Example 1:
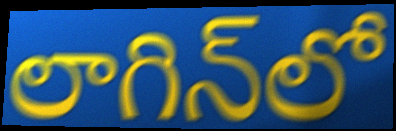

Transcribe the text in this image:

లాగిన్‌లో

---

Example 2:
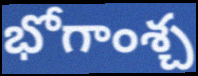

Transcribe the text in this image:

భోగాంశ్చ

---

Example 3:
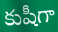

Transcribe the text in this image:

కుషీగా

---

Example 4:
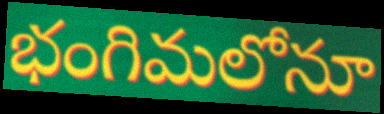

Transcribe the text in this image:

భంగిమలోనూ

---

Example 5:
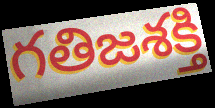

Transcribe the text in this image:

గతిజశక్తి